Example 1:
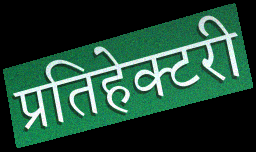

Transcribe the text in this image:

प्रतिहेक्टरी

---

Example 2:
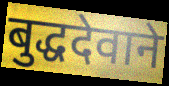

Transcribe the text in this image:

बुद्धदेवाने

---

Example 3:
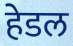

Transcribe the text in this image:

हेडल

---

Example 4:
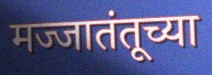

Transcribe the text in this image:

मज्जातंतूच्या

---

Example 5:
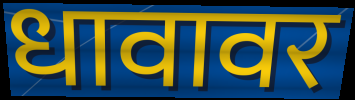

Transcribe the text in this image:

धावावर